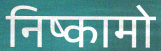
निष्कामो